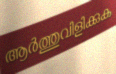
ആർത്തുവിളിക്കുക